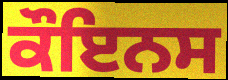
ਕੌਇਨਸ